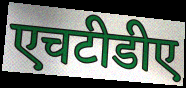
एचटीडीए